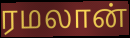
ரமலான்